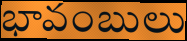
భావంబులు